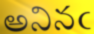
అనినఁ